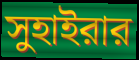
সুহাইরার